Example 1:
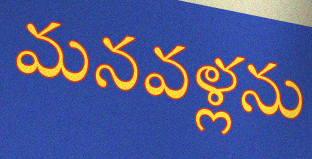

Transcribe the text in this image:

మనవళ్లను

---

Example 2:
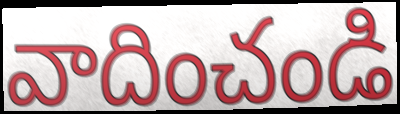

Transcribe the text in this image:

వాదించండి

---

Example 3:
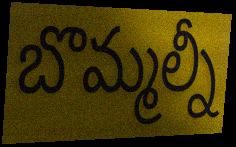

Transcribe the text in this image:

బొమ్మల్నీ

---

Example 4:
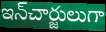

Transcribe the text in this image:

ఇన్‌చార్జులుగా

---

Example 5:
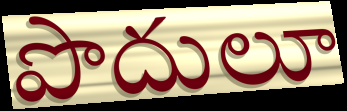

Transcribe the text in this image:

పొదులూ